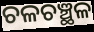
ଚଳଚଞ୍ଛଳ